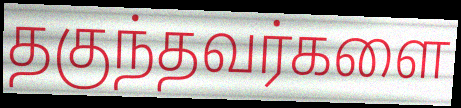
தகுந்தவர்களை